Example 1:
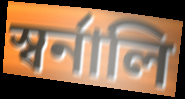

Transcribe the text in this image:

স্বর্নালি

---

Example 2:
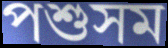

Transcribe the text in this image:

পশুসম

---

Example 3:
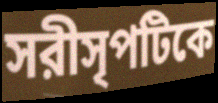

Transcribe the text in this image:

সরীসৃপটিকে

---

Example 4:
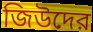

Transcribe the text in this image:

জিউদের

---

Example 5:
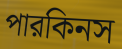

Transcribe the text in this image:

পারকিনস